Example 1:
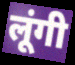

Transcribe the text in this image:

लूंगी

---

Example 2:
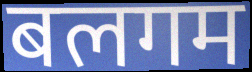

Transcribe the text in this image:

बलगम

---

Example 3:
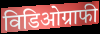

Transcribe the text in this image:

विडिओग्राफी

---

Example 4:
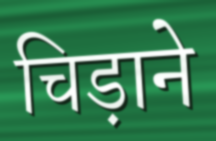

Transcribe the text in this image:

चिड़ाने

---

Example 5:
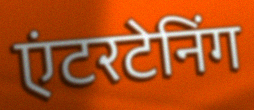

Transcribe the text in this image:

एंटरटेनिंग